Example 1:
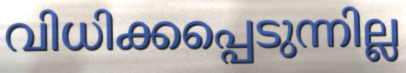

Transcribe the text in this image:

വിധിക്കപ്പെടുന്നില്ല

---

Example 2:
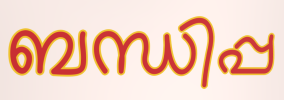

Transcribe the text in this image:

ബന്ധിപ്പ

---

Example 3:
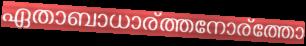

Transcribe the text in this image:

ഏതാബാധാര്ത്തനോര്ത്തോ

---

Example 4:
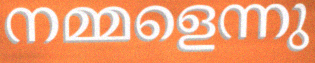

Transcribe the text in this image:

നമ്മളെന്നു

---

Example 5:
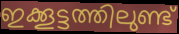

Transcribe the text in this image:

ഇക്കൂട്ടത്തിലുണ്ട്